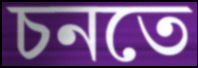
চনতে